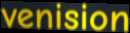
venision